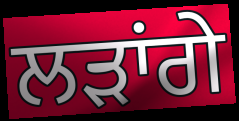
ਲੜਾਂਗੇ